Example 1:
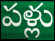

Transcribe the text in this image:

పళ్లు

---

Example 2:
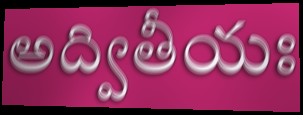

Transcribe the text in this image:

అద్వితీయః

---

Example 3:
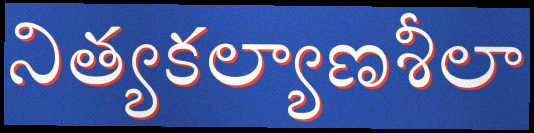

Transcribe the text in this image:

నిత్యకల్యాణశీలా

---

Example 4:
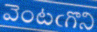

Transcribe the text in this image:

వెంటఁగొని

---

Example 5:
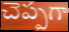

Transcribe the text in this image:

చెప్పగా